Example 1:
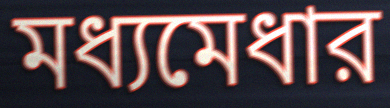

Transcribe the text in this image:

মধ্যমেধার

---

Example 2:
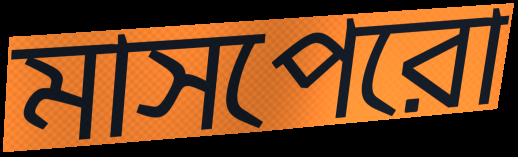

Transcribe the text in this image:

মাসপেরো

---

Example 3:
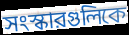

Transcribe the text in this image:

সংস্কারগুলিকে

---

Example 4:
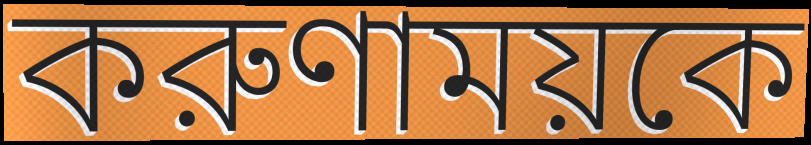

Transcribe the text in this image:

করুণাময়কে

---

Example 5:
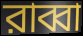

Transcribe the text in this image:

রাব্বা